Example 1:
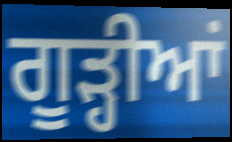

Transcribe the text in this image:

ਗੂੜ੍ਹੀਆਂ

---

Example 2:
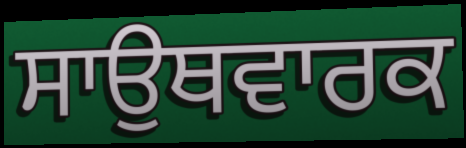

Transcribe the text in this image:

ਸਾਉਥਵਾਰਕ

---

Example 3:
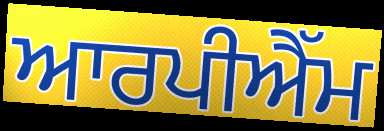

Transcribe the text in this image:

ਆਰਪੀਐੱਮ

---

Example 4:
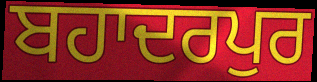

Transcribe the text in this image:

ਬਹਾਦਰਪੁਰ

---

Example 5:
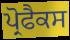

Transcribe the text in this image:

ਪ੍ਰੋਫੈਕਸ